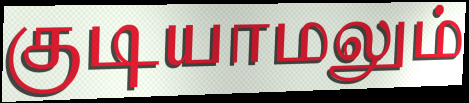
குடியாமலும்